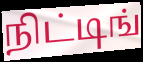
நிட்டிங்